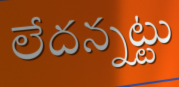
లేదన్నట్టు